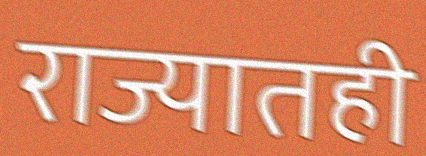
राज्यातही